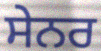
ਸੇਨਰ